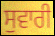
ਸੁਵਾਰੀ